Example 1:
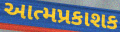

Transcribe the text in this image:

આત્મપ્રકાશક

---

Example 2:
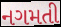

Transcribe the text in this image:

નગમતી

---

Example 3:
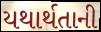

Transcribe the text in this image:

યથાર્થતાની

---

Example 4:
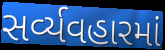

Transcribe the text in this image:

સર્વ્યવહારમાં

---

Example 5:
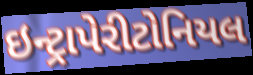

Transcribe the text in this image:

ઇન્ટ્રાપેરીટોનિયલ